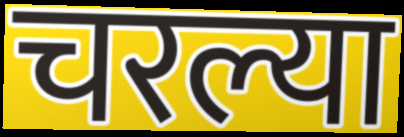
चरल्या